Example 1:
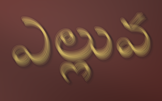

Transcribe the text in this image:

ఎల్లువ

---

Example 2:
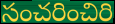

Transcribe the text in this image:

సంచరించిరి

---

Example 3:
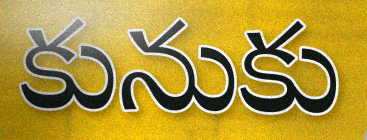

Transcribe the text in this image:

కునుకు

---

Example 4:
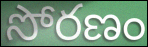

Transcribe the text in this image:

సోరణం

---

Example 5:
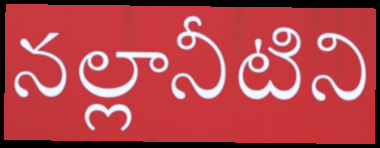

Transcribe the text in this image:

నల్లానీటిని